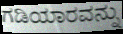
ಗಡಿಯಾರವನ್ನು